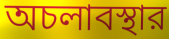
অচলাবস্থার